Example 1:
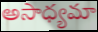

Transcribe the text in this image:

అసాధ్యమా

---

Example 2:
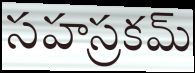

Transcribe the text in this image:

సహస్రకమ్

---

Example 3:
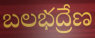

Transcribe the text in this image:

బలభద్రేణ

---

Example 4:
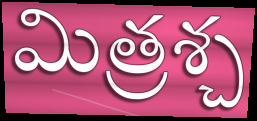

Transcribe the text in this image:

మిత్రశ్చ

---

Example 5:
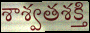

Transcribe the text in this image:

శాశ్వతశక్తి